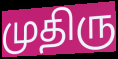
முதிரு